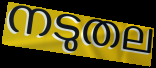
നടുതല